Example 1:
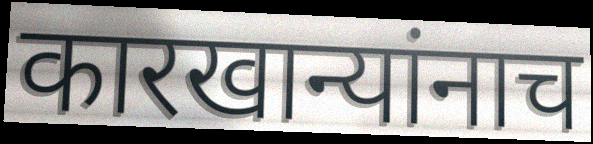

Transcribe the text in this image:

कारखान्यांनाच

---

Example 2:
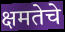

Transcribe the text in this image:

क्षमतेचे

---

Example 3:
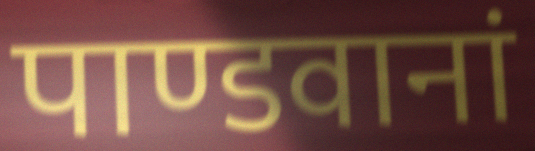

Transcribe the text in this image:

पाण्डवानां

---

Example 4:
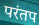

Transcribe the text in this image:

परंतप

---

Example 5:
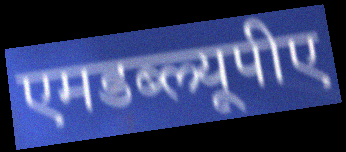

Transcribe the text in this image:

एमडब्ल्यूपीए